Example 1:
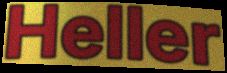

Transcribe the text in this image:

Heller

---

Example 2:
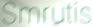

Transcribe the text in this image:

Smrutis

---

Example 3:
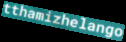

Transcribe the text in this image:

tthamizhelango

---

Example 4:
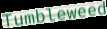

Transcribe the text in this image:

Tumbleweed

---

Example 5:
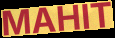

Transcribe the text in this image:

MAHIT